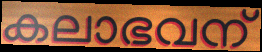
കലാഭവന്